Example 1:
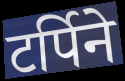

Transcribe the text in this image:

टर्पिने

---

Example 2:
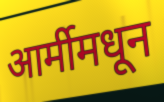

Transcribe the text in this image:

आर्मीमधून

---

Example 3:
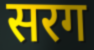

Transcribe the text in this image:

सरग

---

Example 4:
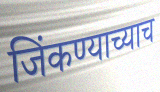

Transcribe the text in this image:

जिंकण्याच्याच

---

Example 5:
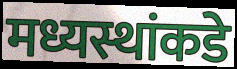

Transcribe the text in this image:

मध्यस्थांकडे